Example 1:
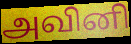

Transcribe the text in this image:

அவினி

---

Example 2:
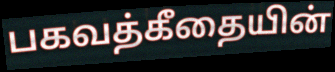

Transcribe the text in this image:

பகவத்கீதையின்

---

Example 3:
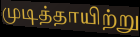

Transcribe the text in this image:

முடித்தாயிற்று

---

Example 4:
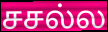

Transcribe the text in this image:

சசல்ல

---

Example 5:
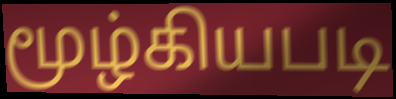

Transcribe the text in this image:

மூழ்கியபடி